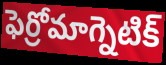
ఫెర్రోమాగ్నెటిక్